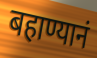
बहाण्यानं